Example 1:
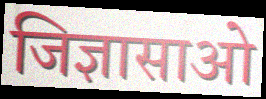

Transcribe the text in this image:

जिज्ञासाओ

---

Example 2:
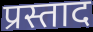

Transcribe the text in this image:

प्रस्ताद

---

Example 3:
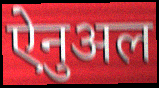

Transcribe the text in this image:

ऐनुअल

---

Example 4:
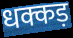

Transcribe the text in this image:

धक्कड़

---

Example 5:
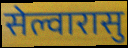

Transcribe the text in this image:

सेल्वारासु